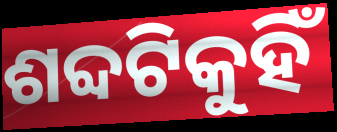
ଶବ୍ଦଟିକୁହିଁ